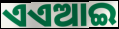
ଏଏଆଇ